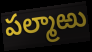
పల్మాఱు